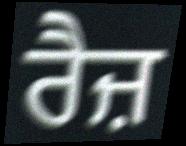
ਰੈਜ਼